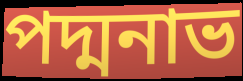
পদ্মনাভ